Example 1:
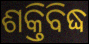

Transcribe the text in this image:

ଶକ୍ତିବିଦ୍ଧ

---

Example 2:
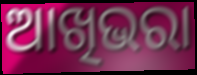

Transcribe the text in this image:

ଆଖିଭରା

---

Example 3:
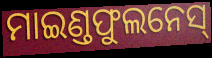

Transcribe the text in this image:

ମାଇଣ୍ଡଫୁଲନେସ୍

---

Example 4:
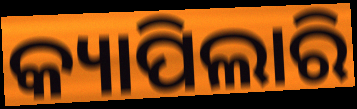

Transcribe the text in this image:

କ୍ୟାପିଲାରି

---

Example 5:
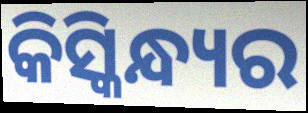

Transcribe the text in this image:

କିସ୍କିନ୍ଧ୍ୟର